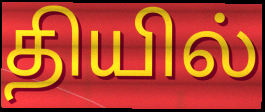
தியில்